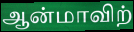
ஆன்மாவிற்